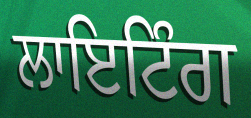
ਲਾਇਟਿੰਗ